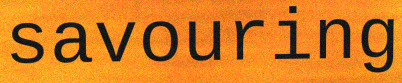
savouring